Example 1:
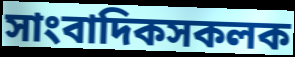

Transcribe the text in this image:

সাংবাদিকসকলক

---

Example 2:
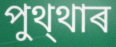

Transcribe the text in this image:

পুথ্থাৰ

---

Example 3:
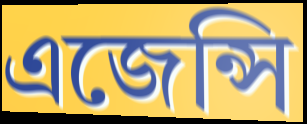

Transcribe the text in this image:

এজেন্সি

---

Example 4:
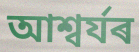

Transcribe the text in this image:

আশ্বৰ্যৰ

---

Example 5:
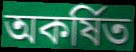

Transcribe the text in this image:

অকৰ্ষিত